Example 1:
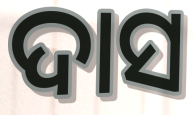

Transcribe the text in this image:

ଦାସ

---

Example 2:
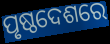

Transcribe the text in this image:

ପୃଷ୍ଠଦେଶରେ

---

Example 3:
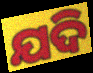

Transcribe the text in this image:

ଯଦି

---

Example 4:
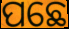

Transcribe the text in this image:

ପଛେ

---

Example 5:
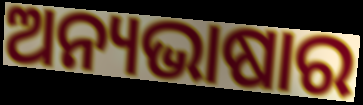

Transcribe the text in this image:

ଅନ୍ୟଭାଷାର